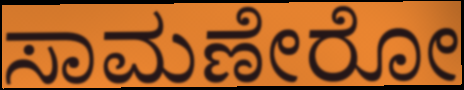
ಸಾಮಣೇರೋ